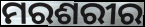
ମରଶରୀର